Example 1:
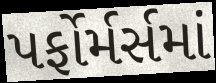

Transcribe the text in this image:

પર્ફોર્મર્સમાં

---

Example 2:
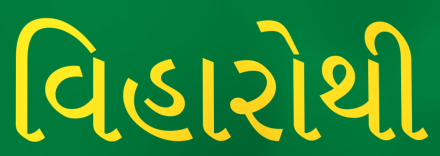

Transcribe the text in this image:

વિહારોથી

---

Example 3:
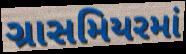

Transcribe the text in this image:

ગ્રાસમિયરમાં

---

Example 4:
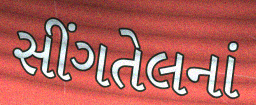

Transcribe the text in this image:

સીંગતેલનાં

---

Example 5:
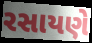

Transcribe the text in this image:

રસાયણે